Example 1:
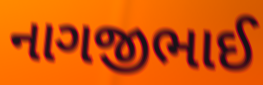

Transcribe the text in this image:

નાગજીભાઈ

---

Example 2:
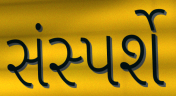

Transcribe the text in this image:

સંસ્પર્શે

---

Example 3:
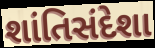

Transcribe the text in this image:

શાંતિસંદેશા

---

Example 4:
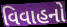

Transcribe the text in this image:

વિવાહનો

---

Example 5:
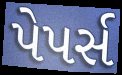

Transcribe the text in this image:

પેપર્સ